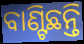
ବାଣ୍ଟିଛନ୍ତି